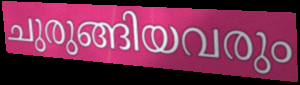
ചുരുങ്ങിയവരും